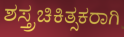
ಶಸ್ತ್ರಚಿಕಿತ್ಸಕರಾಗಿ